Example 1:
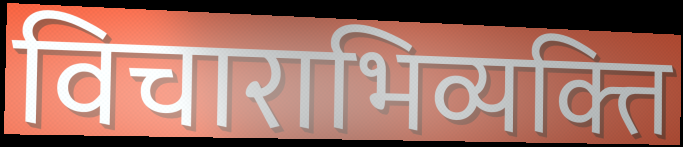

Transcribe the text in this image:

विचाराभिव्यक्ति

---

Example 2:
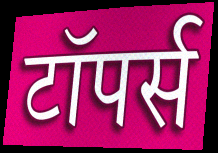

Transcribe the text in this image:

टॉपर्स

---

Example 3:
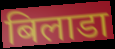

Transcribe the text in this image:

बिलाडा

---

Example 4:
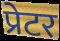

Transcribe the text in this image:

प्रेटर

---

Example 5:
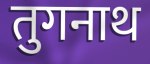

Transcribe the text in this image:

तुगनाथ